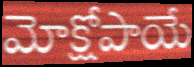
మోక్షోపాయే